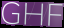
GHF